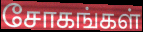
சோகங்கள்